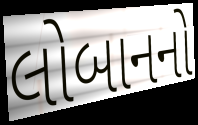
લોબાનનો